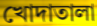
খোদাতালা